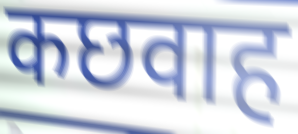
कछवाह